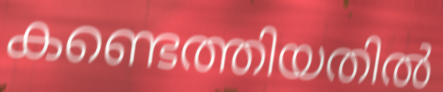
കണ്ടെത്തിയതിൽ